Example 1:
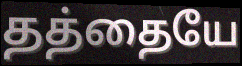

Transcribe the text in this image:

தத்தையே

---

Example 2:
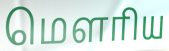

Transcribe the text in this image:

மௌரிய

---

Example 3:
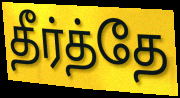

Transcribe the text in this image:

தீர்த்தே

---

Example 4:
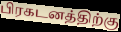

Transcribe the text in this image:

பிரகடனத்திற்கு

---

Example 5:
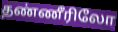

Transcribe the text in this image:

தண்ணீரிலோ